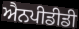
ਐਨਪੀਡੀਡੀ